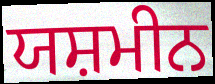
ਯਸ਼ਮੀਨ